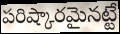
పరిష్కారమైనట్టే